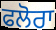
ਫਲੋਰਾ